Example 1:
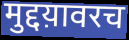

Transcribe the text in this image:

मुद्दय़ावरच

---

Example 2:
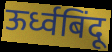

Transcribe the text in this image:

ऊर्ध्वबिंदू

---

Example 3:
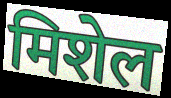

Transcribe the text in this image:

मिशेल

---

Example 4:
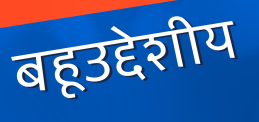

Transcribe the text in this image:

बहूउद्देशीय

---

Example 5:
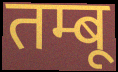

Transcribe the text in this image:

तम्बू